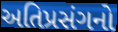
અતિપ્રસંગનો